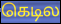
கெடில